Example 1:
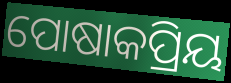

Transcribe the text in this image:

ପୋଷାକପ୍ରିୟ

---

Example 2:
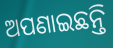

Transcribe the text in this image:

ଅପଣାଇଛନ୍ତି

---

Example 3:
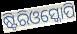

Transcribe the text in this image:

ଷ୍ଟିରିଓସ୍କୋପି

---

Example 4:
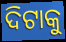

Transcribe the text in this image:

ଦିଟାକୁ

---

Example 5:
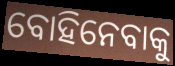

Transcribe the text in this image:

ବୋହିନେବାକୁ